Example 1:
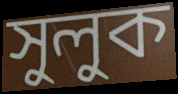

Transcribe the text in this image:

সুলুক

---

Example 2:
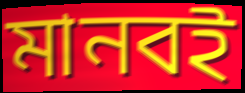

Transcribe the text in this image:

মানবই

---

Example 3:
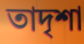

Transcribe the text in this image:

তাদৃশা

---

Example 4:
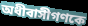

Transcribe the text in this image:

অধীবাসীগণকে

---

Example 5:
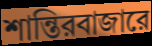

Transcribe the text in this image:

শান্তিরবাজারে